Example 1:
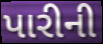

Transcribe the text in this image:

પારીની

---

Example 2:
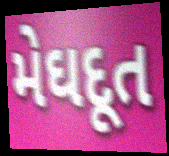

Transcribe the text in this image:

મેઘદૂત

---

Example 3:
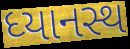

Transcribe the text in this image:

ધ્યાનસ્થ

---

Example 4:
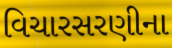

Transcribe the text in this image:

વિચારસરણીના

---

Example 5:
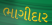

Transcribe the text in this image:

ભાગીદાર